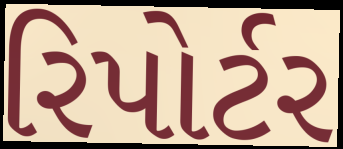
રિપોર્ટર